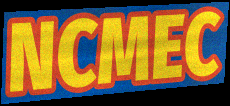
NCMEC